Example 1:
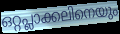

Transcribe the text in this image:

ഒറ്റപ്ലാക്കലിനെയും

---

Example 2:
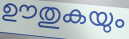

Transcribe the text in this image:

ഊതുകയും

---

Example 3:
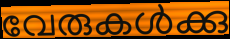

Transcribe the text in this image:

വേരുകൾക്കു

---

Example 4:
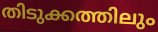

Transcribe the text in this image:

തിടുക്കത്തിലും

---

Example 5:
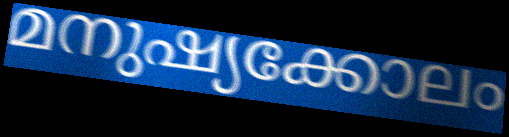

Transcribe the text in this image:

മനുഷ്യക്കോലം